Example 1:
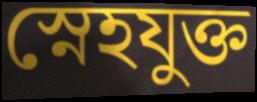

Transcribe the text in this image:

স্নেহযুক্ত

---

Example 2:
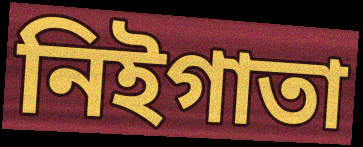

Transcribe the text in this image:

নিইগাতা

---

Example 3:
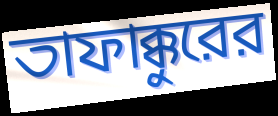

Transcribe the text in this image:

তাফাক্কুরের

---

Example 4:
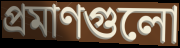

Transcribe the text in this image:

প্রমাণগুলো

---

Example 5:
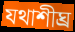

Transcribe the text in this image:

যথাশীঘ্র